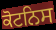
ਕੋਟਨਿਸ